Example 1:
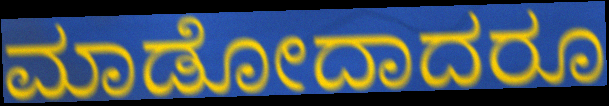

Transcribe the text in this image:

ಮಾಡೋದಾದರೂ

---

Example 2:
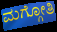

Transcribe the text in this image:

ಮಗ್ಗೋತಿ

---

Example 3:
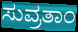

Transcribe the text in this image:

ಸುವ್ರತಾಂ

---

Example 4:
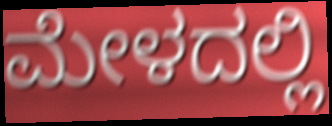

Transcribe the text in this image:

ಮೇಳದಲ್ಲಿ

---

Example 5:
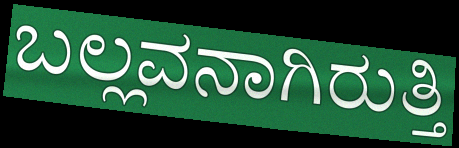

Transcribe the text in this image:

ಬಲ್ಲವನಾಗಿರುತ್ತಿ